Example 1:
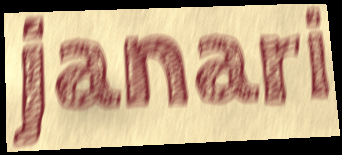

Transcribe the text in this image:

janari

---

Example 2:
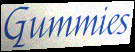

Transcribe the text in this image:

Gummies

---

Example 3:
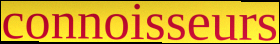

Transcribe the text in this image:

connoisseurs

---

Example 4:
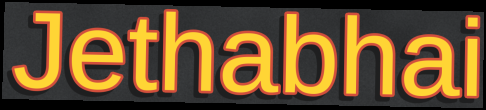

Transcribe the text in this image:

Jethabhai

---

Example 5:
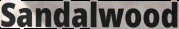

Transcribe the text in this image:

Sandalwood